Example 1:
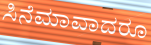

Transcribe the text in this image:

ಸಿನೆಮಾವಾದರೂ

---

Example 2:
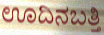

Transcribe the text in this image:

ಊದಿನಬತ್ತಿ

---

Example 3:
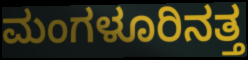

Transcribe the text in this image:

ಮಂಗಳೂರಿನತ್ತ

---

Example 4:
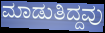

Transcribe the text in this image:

ಮಾಡುತಿದ್ದವು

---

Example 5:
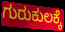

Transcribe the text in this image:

ಗುರುಕುಲಕ್ಕೆ